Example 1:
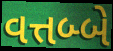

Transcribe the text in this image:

વત્તબ્બે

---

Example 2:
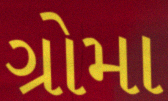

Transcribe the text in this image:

ગ્રોમા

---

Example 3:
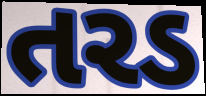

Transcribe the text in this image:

તરડ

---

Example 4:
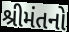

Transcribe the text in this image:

શ્રીમંતનો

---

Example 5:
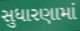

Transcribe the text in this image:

સુધારણામાં